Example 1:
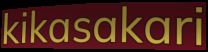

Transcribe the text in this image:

kikasakari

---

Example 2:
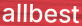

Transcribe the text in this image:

allbest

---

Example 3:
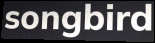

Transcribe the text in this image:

songbird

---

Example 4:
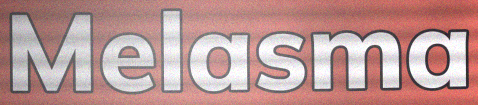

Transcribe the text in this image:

Melasma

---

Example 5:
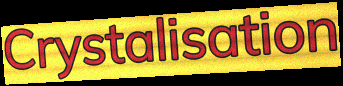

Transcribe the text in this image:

Crystalisation